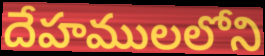
దేహములలోని